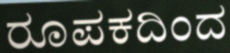
ರೂಪಕದಿಂದ